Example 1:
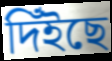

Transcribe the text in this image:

দিঁইছে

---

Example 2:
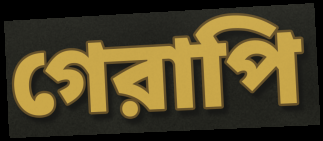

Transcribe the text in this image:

গেরাপি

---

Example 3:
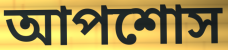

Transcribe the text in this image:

আপশোস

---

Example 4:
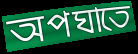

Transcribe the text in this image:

অপঘাতে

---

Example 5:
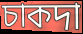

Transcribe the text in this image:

চাকদা